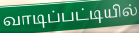
வாடிப்பட்டியில்